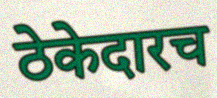
ठेकेदारच